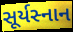
સૂર્યસ્નાન